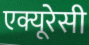
एक्यूरेसी